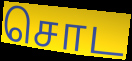
சொட